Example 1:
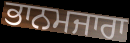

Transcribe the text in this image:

ਭਾਨਮਜਾਰਾ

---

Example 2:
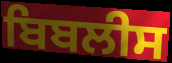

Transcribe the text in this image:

ਬਿਬਲੀਸ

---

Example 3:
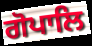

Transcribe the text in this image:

ਗੋਪਾਲਿ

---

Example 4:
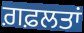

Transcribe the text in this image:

ਗ਼ਫ਼ਲਤਾਂ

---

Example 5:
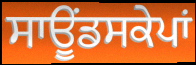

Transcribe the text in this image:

ਸਾਊਂਡਸਕੇਪਾਂ